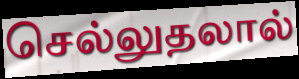
செல்லுதலால்